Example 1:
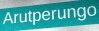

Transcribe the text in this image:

Arutperungo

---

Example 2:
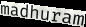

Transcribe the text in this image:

madhuram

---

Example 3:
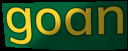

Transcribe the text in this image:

goan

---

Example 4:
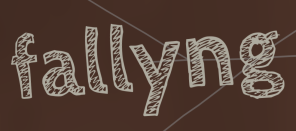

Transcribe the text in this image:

fallyng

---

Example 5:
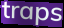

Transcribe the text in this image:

traps